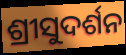
ଶ୍ରୀସୁଦର୍ଶନ